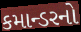
કમાન્ડરનો